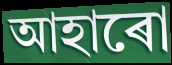
আহাৰো